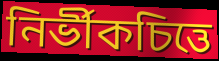
নির্ভীকচিত্তে